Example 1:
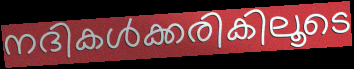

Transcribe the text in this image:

നദികൾക്കരികിലൂടെ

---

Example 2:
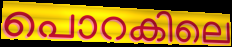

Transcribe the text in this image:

പൊറകിലെ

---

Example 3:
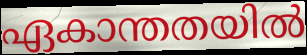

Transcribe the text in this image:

ഏകാന്തതയിൽ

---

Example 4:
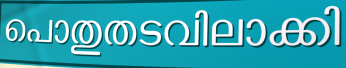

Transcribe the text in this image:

പൊതുതടവിലാക്കി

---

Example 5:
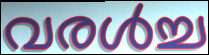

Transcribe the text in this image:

വരൾച്ച